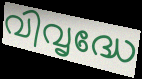
വിവൃദ്ധേ